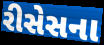
રીસેસના